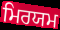
ਮਿਰਯਮ